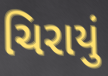
ચિરાયું